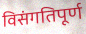
विसंगतिपूर्ण